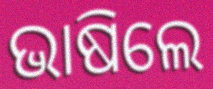
ଭାଷିଲେ